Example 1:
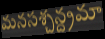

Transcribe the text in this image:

మనసశ్చన్ద్రమా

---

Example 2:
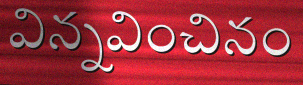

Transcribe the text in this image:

విన్నవించినం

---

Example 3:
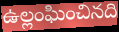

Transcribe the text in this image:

ఉల్లంఘించినది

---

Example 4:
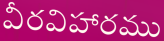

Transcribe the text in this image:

వీరవిహారము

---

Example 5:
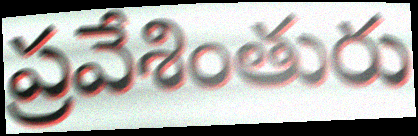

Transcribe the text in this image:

ప్రవేశింతురు